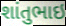
શાંતુભાઇ